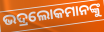
ଭଦ୍ରଲୋକମାନଙ୍କୁ